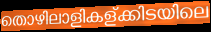
തൊഴിലാളികള്ക്കിടയിലെ